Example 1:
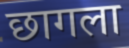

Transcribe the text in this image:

छागला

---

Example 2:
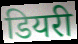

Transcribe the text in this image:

डियरी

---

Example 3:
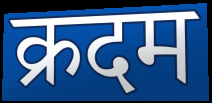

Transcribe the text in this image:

क्रदम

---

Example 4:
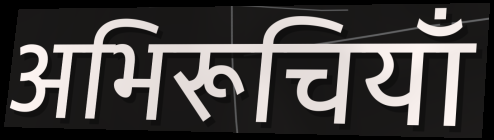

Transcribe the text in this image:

अभिरूचियाँ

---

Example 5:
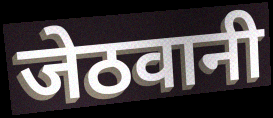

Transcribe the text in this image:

जेठवानी